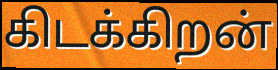
கிடக்கிறன்